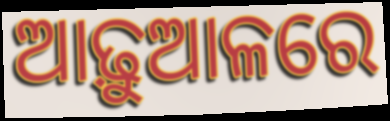
ଆଢ଼ୁଆଳରେ